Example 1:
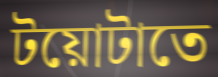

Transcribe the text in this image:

টয়োটাতে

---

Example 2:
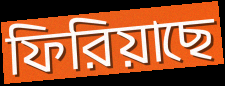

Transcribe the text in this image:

ফিরিয়াছে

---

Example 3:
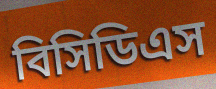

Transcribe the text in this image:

বিসিডিএস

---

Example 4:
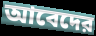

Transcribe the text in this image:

আবেদের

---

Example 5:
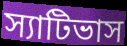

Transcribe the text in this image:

স্যাটিভাস